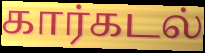
கார்கடல்